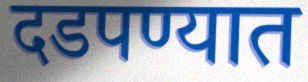
दडपण्यात